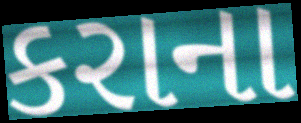
કરાના